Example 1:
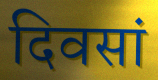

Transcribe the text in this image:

दिवसां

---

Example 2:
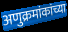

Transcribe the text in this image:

अणुक्रमांकांच्या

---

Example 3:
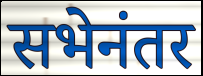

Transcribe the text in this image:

सभेनंतर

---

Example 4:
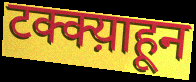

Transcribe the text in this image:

टक्क्य़ाहून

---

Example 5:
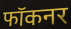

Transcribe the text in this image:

फॉकनर